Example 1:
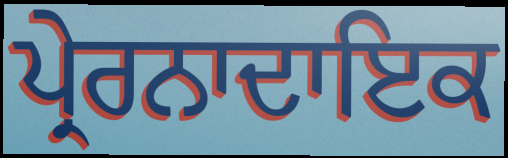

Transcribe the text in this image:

ਪ੍ਰੇਰਨਾਦਾਇਕ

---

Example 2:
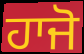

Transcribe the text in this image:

ਹਾਜੋ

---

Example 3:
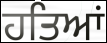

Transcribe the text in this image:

ਹਤਿਆਂ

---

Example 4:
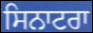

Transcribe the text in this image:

ਸਿਨਾਟਰਾ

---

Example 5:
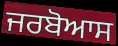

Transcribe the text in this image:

ਜਰਬੋਆਸ